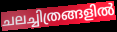
ചലച്ചിത്രങ്ങളിൽ